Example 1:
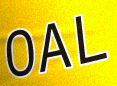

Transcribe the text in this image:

OAL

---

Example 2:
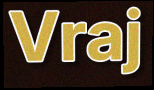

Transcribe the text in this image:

Vraj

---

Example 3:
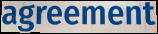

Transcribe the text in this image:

agreement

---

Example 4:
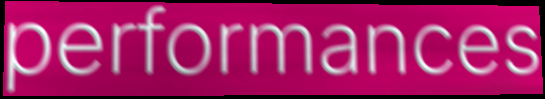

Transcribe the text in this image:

performances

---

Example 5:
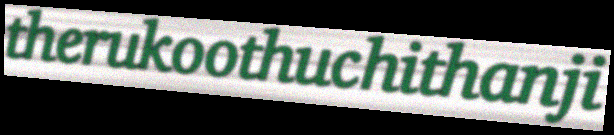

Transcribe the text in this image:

therukoothuchithanji